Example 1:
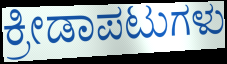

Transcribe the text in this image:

ಕ್ರೀಡಾಪಟುಗಳು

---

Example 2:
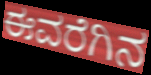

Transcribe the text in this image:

ಈವರೆಗಿನ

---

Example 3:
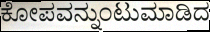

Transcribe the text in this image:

ಕೋಪವನ್ನುಂಟುಮಾಡಿದ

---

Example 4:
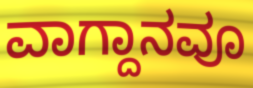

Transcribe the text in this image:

ವಾಗ್ದಾನವೂ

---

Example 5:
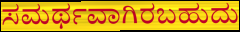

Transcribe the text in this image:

ಸಮರ್ಥವಾಗಿರಬಹುದು